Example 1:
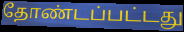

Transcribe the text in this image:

தோண்டப்பட்டது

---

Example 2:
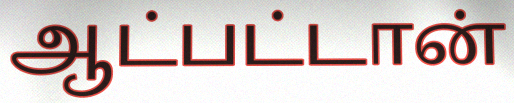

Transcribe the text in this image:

ஆட்பட்டான்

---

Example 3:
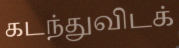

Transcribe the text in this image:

கடந்துவிடக்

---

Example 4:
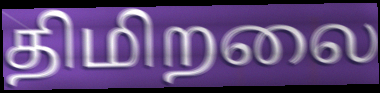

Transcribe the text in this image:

திமிறலை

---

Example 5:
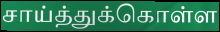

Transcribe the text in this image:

சாய்த்துக்கொள்ள